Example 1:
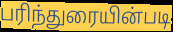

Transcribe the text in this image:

பரிந்துரையின்படி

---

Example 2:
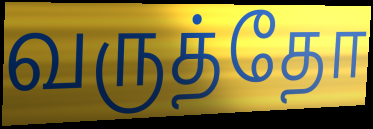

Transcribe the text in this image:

வருத்தோ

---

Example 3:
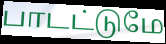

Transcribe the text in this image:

பாடட்டுமே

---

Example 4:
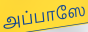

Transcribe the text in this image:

அப்பாஸே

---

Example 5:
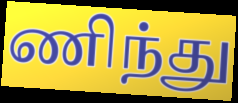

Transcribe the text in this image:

ணிந்து